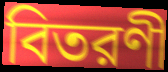
বিতরণী